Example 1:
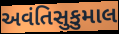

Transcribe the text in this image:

અવંતિસુકુમાલ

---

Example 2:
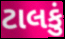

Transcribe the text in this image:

ટાલકું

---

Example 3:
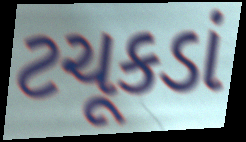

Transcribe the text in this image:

ટચૂકડાં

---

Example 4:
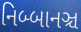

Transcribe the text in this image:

નિબ્બાનઞ્ચ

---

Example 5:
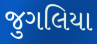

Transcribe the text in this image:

જુગલિયા